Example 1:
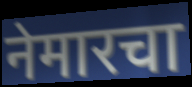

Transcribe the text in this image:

नेमारचा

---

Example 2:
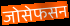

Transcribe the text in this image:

जोसेफसन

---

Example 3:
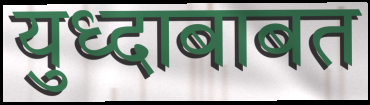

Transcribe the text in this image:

युध्दाबाबत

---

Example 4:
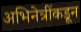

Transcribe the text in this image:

अभिनेत्रींकडून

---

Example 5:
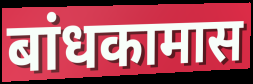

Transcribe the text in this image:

बांधकामास